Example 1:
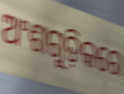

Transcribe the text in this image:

ଅଂଶଗୁଡ଼ିକରେ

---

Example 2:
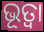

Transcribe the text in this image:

ଭୂତ୍ୱା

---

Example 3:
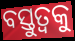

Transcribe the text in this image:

ବସ୍ତୁତ୍ଵକୁ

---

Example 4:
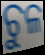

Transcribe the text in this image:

ଚୁଳ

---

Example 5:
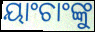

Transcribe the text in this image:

ୟାଂଚାଂଙ୍କୁ